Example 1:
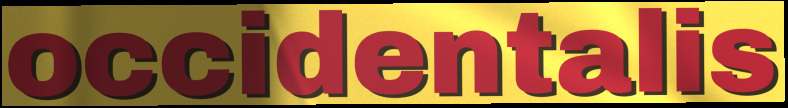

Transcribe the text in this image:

occidentalis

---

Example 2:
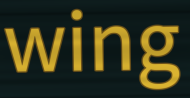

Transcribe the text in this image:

wing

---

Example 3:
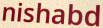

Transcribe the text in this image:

nishabd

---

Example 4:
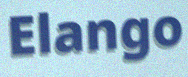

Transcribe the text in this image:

Elango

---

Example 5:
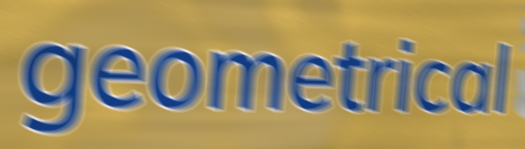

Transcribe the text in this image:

geometrical